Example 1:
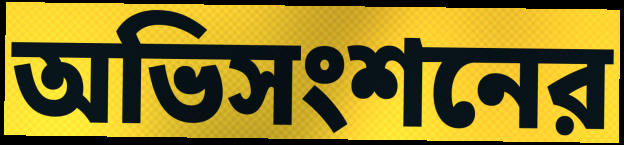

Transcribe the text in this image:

অভিসংশনের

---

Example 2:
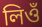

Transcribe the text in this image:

লিওঁ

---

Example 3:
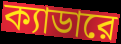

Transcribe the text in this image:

ক্যাডারে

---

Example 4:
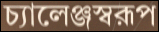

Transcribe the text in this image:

চ্যালেঞ্জস্বরূপ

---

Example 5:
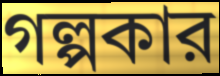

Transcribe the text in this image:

গল্পকার